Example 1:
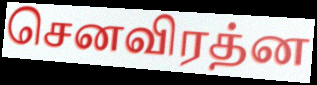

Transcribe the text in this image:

செனவிரத்ன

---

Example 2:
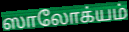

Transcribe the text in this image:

ஸாலோக்யம்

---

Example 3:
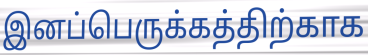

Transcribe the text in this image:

இனப்பெருக்கத்திற்காக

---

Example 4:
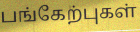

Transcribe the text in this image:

பங்கேற்புகள்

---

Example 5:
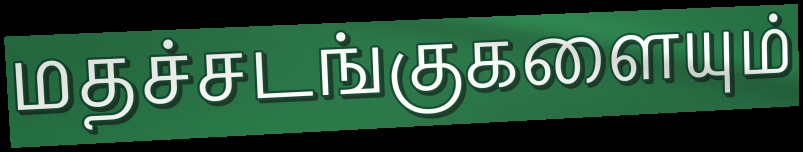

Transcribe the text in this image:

மதச்சடங்குகளையும்